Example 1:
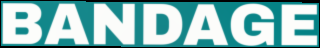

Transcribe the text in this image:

BANDAGE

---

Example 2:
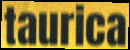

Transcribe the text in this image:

taurica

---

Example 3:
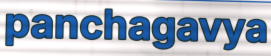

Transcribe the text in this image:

panchagavya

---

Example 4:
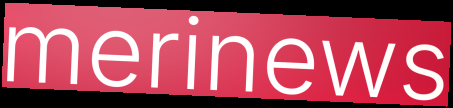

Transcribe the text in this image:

merinews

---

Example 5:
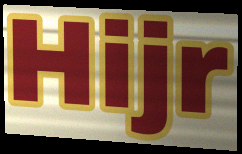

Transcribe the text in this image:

Hijr